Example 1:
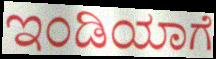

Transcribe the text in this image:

ಇಂಡಿಯಾಗೆ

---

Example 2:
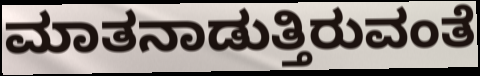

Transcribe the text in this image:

ಮಾತನಾಡುತ್ತಿರುವಂತೆ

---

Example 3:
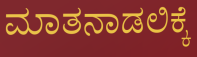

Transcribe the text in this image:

ಮಾತನಾಡಲಿಕ್ಕೆ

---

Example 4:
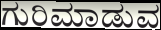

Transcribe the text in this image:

ಗುರಿಮಾಡುವ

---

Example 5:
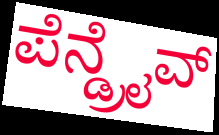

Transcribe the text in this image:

ಪೆನ್ಡ್ರೈವ್